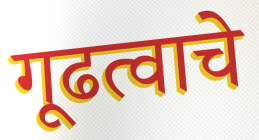
गूढत्वाचे